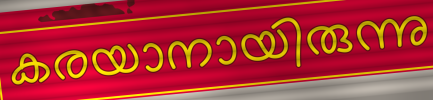
കരയാനായിരുന്നു